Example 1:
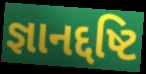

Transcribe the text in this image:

જ્ઞાનદ્દષ્ટિ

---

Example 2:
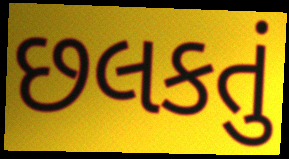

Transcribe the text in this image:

છલકતું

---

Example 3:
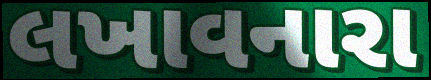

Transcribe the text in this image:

લખાવનારા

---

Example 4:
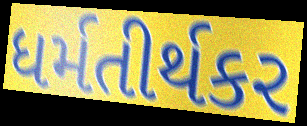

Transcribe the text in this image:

ધર્મતીર્થકર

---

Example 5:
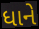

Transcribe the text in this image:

ધાને